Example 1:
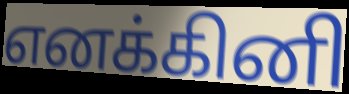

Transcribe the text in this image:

எனக்கினி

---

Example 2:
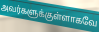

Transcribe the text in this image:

அவர்களுக்குள்ளாகவே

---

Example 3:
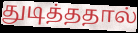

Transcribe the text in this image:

துடித்ததால்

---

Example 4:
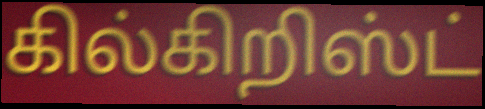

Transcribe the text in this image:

கில்கிறிஸ்ட்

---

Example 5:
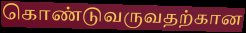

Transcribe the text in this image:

கொண்டுவருவதற்கான